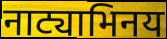
नाट्याभिनय